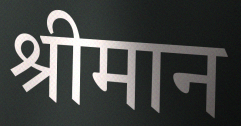
श्रीमान